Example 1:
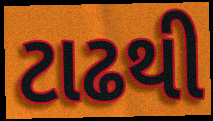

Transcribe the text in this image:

ટાઢથી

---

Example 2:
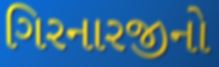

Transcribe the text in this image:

ગિરનારજીનો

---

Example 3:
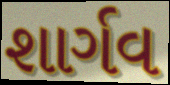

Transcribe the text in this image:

શાર્ગવ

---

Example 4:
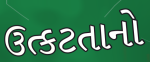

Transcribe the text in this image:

ઉત્કટતાનો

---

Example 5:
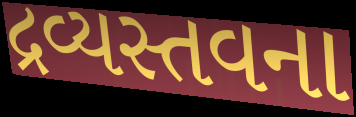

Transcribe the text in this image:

દ્રવ્યસ્તવના